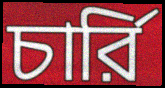
চার্রি